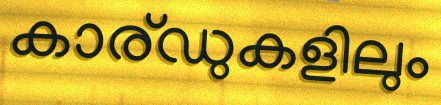
കാര്ഡുകളിലും